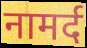
नामर्द